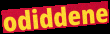
odiddene